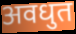
अवधुत